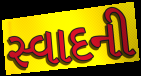
સ્વાદની